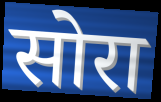
सोरा